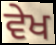
ਵੇਖ